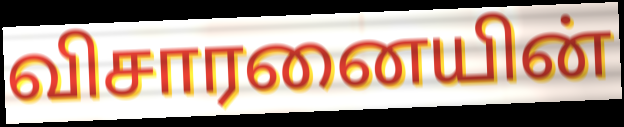
விசாரனையின்